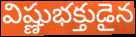
విష్ణుభక్తుడైన